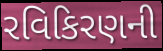
રવિકિરણની